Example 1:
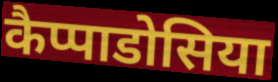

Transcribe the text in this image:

कैप्पाडोसिया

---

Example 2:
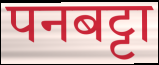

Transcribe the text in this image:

पनबट्टा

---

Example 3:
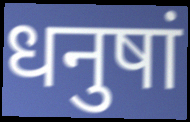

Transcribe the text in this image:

धनुषां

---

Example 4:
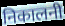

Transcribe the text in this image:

निकालनी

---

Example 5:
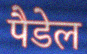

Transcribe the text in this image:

पैडेल